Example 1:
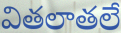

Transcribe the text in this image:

వితలాతలే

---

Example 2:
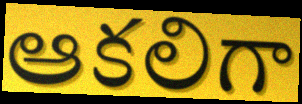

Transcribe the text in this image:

ఆకలిగా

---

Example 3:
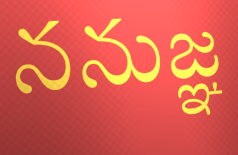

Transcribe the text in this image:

ననుజ్ఞ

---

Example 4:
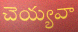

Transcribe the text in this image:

చెయ్యవా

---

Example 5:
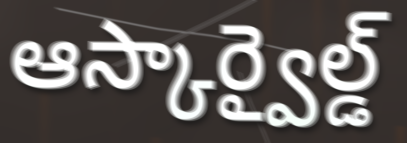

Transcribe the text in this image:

ఆస్కార్వైల్డ్